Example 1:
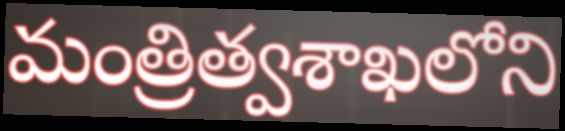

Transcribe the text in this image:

మంత్రిత్వశాఖలోని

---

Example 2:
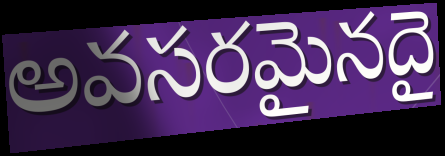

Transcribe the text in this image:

అవసరమైనదై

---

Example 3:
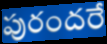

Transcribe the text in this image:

పురందరే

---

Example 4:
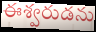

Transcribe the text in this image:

ఈశ్వరుడను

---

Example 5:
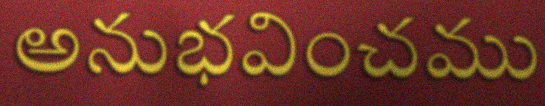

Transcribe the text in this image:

అనుభవించము